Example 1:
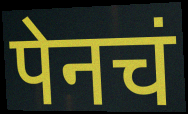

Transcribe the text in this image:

पेनचं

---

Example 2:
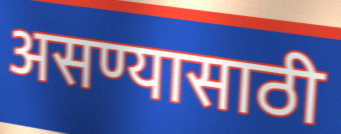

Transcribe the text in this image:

असण्यासाठी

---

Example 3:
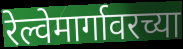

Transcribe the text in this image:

रेल्वेमार्गावरच्या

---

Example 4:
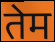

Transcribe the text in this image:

तेम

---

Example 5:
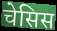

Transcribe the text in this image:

चेसिस